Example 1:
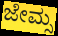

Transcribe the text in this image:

ಜೇಮ್ಸ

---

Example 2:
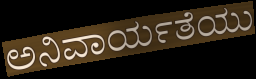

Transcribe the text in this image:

ಅನಿವಾರ್ಯತೆಯು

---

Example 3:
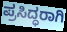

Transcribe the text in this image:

ಪ್ರಸಿದ್ಧರಾಗಿ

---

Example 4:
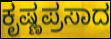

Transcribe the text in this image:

ಕೃಷ್ಣಪ್ರಸಾದ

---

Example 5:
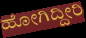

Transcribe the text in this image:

ಹೋಗಿದ್ದೀರಿ